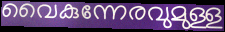
വൈകുന്നേരവുമുള്ള